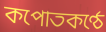
কপোতকণ্ঠে